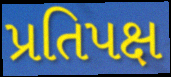
પ્રતિપક્ષ